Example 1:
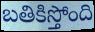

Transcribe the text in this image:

బతికిస్తోంది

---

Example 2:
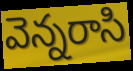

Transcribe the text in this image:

వెన్నరాసి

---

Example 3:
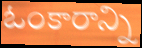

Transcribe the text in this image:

ఓంకారాన్ని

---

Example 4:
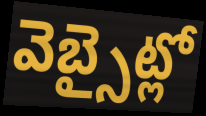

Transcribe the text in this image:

వెబ్సైట్లో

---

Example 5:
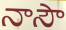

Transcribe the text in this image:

నాసౌ